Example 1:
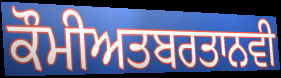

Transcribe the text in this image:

ਕੌਮੀਅਤਬਰਤਾਨਵੀ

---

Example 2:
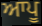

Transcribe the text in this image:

ਆਪੂ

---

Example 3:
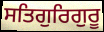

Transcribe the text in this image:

ਸਤਿਗੁਰਿਗੁਰੂ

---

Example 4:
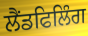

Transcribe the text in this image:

ਲੈਂਡਫਿਲਿੰਗ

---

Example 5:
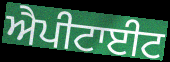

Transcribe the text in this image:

ਐਪੀਟਾਈਟ